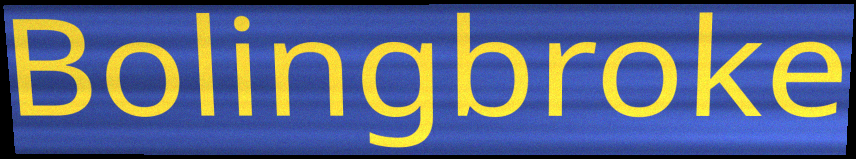
Bolingbroke